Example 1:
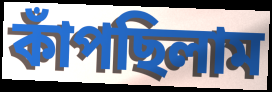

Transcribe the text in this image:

কাঁপছিলাম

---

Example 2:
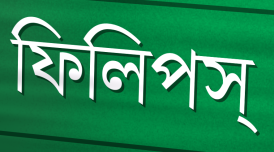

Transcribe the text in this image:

ফিলিপস্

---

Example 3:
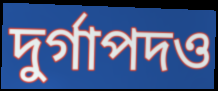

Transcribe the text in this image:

দুর্গাপদও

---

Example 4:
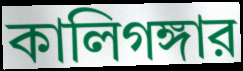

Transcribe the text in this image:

কালিগঙ্গার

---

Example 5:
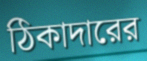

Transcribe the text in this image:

ঠিকাদারের